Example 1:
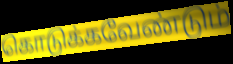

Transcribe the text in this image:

கொடுக்கவேண்டும்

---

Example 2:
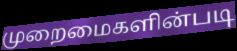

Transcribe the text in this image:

முறைமைகளின்படி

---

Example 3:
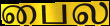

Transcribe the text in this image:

பைல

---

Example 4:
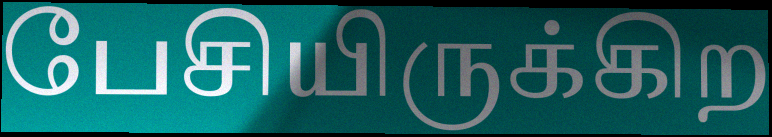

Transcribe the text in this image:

பேசியிருக்கிற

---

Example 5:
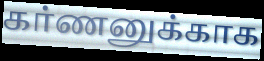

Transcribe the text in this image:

கர்ணனுக்காக